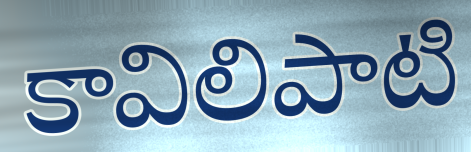
కావిలిపాటి